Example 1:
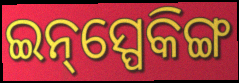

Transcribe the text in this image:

ଇନ୍‌ସ୍ପେକିଙ୍ଗ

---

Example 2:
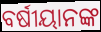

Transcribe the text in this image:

ବର୍ଷୀୟାନଙ୍କ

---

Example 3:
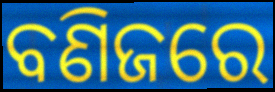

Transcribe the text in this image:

ବଣିଜରେ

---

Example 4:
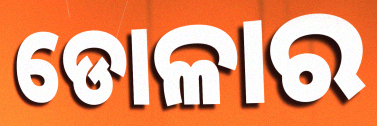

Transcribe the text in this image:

ଡୋଳାର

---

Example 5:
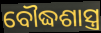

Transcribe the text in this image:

ବୌଦ୍ଧଶାସ୍ତ୍ର